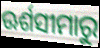
ଊର୍ଶସୀମାରୁ